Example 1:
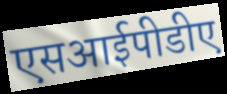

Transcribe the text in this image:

एसआईपीडीए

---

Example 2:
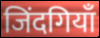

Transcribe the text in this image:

जिंदगियाँ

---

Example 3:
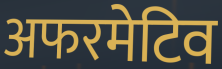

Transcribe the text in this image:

अफरमेटिव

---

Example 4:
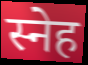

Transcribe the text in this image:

स्नेह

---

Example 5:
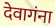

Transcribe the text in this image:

देवागंना